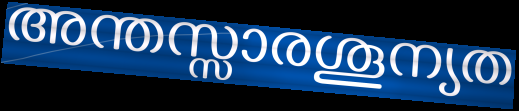
അന്തസ്സാരശൂന്യത